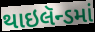
થાઇલૅન્ડમાં